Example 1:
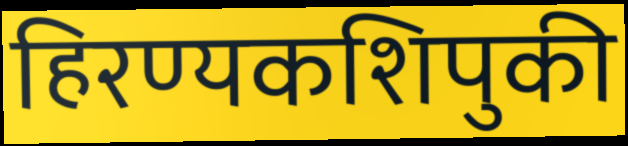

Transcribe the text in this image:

हिरण्यकशिपुकी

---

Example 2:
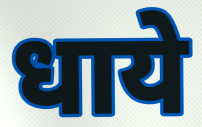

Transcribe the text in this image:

धाये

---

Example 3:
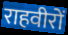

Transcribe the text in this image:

राहवीरों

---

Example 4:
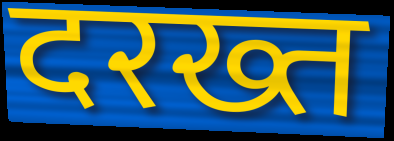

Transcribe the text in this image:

दरख्त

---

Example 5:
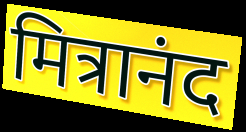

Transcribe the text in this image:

मित्रानंद